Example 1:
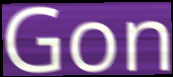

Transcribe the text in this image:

Gon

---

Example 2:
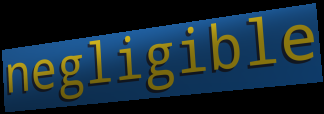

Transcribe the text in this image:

negligible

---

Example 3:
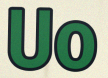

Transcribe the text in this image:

Uo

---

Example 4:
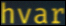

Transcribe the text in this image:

hvar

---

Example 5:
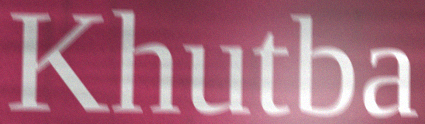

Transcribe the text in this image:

Khutba